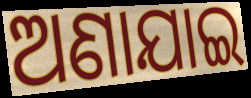
ଅଣାଯାଇ